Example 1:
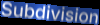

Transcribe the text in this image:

Subdivision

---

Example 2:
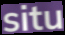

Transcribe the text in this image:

situ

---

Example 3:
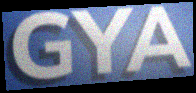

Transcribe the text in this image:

GYA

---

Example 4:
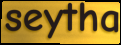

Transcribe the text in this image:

seytha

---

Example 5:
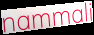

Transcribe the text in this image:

nammali